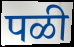
पळी